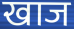
खाज